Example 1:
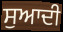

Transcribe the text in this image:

ਸੁਆਦੀ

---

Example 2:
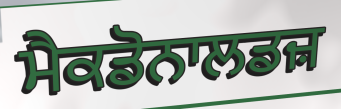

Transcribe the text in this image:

ਮੈਕਡੋਨਾਲਡਜ਼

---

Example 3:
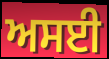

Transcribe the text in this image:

ਅਸਈ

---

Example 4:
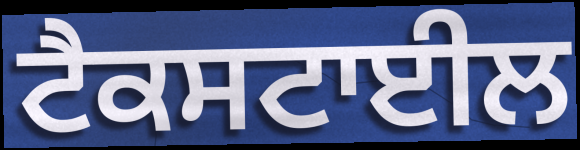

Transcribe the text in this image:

ਟੈਕਸਟਾਈਲ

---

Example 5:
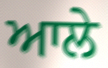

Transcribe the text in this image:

ਆਲੇ